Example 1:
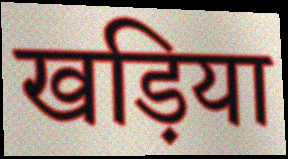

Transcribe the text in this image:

खड़िया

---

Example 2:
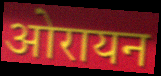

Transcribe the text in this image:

ओरायन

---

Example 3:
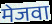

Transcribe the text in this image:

मेजवा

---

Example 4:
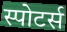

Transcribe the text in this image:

स्पोटर्स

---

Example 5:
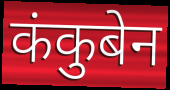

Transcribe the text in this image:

कंकुबेन